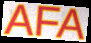
AFA